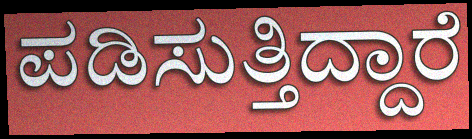
ಪಡಿಸುತ್ತಿದ್ದಾರೆ